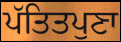
ਪੱਤਿਤਪੁਣਾ